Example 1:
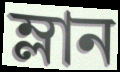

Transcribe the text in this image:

ম্লান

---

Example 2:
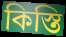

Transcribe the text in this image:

কিস্তি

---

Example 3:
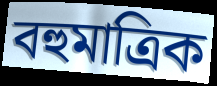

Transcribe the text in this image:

বহুমাত্ৰিক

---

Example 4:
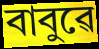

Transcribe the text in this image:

বাবুৱে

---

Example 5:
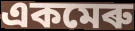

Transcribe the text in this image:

একমেৰু